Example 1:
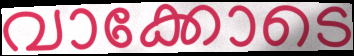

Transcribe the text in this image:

വാക്കോടെ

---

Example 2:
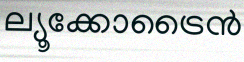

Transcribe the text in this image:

ല്യൂക്കോട്രൈൻ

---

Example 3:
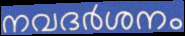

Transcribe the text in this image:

നവദർശനം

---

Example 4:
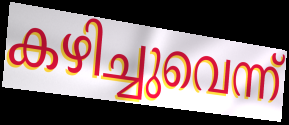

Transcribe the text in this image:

കഴിച്ചുവെന്ന്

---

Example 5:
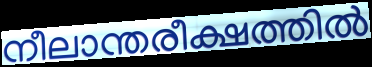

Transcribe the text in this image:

നീലാന്തരീക്ഷത്തിൽ